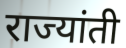
राज्यांती